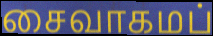
சைவாகமப்